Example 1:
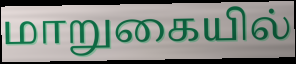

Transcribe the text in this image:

மாறுகையில்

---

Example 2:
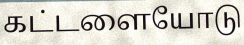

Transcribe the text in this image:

கட்டளையோடு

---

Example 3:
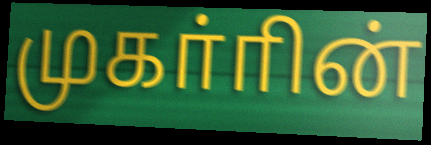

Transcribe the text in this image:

முகர்ரின்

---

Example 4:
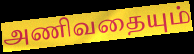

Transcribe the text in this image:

அணிவதையும்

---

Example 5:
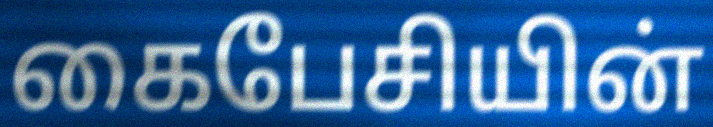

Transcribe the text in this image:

கைபேசியின்